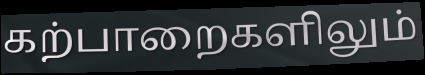
கற்பாறைகளிலும்